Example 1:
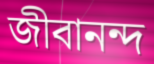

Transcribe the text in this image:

জীবানন্দ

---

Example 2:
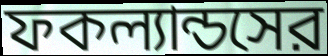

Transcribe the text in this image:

ফকল্যান্ডসের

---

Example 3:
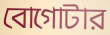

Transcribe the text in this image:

বোগোটার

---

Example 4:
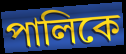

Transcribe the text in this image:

পালিকে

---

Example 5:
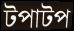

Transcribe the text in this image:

টপাটপ